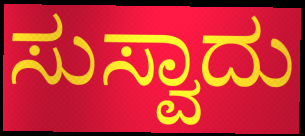
ಸುಸ್ವಾದು